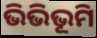
ଭିଭିଭୂମି